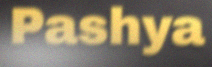
Pashya